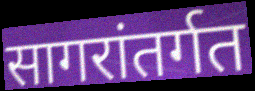
सागरांतर्गत